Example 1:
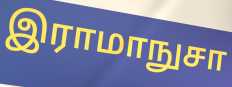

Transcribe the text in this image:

இராமாநுசா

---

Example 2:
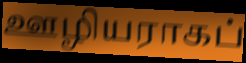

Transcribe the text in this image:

ஊழியராகப்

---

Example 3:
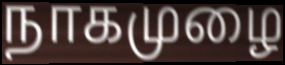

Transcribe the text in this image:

நாகமுழை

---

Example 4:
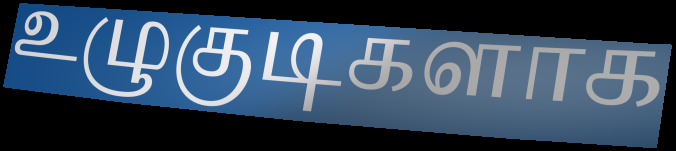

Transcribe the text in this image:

உழுகுடிகளாக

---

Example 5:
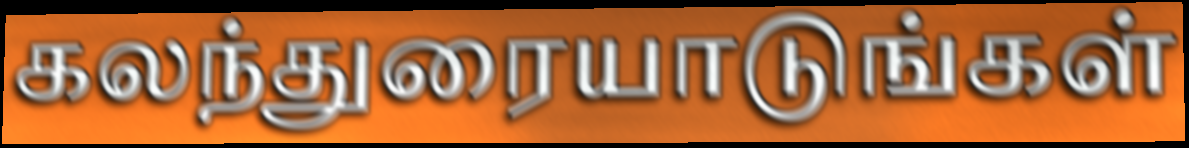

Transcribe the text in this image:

கலந்துரையாடுங்கள்